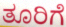
ತೂರಿಗೆ